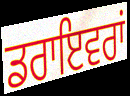
ਡਰਾਇਵਰਾਂ